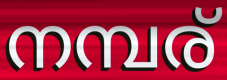
നമ്പര്